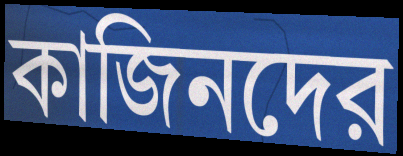
কাজিনদের